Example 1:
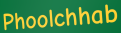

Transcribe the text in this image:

Phoolchhab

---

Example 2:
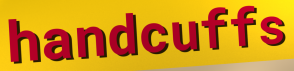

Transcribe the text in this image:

handcuffs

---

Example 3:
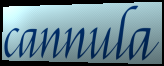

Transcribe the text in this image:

cannula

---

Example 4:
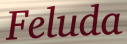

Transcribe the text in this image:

Feluda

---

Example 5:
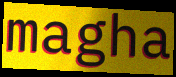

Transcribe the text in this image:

magha